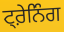
ਟ੍ਰ਼ੇਨਿੰਗ